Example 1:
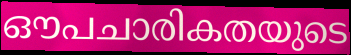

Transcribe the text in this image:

ഔപചാരികതയുടെ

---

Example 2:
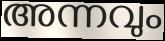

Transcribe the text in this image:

അന്നവും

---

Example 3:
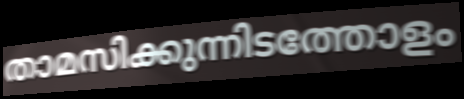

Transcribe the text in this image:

താമസിക്കുന്നിടത്തോളം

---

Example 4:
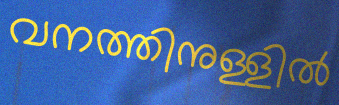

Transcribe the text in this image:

വനത്തിനുള്ളിൽ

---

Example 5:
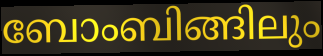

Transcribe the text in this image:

ബോംബിങ്ങിലും